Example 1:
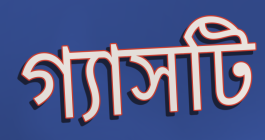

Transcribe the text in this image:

গ্যাসটি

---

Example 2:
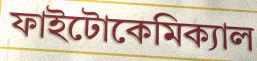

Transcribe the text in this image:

ফাইটোকেমিক্যাল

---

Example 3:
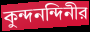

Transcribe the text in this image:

কুন্দনন্দিনীর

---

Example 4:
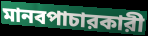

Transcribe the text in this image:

মানবপাচারকারী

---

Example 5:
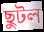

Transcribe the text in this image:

ছুটল